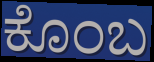
ಕೊಂಬ